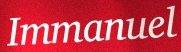
Immanuel